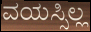
ವಯಸ್ಸಿಲ್ಲ